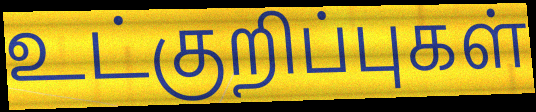
உட்குறிப்புகள்